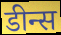
डीन्स